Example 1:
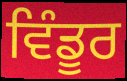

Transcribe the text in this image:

ਵਿੰਡੂਰ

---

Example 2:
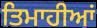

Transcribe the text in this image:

ਤਿਮਾਹੀਆਂ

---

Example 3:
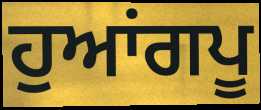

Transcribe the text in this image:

ਹੁਆਂਗਪੂ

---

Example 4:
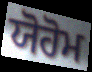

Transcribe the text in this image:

ਯੋਹੋਮ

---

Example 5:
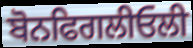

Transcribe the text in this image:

ਬੋਨਫਿਗਲੀਓਲੀ